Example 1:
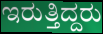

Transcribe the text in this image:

ಇರುತ್ತಿದ್ದರು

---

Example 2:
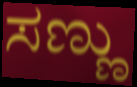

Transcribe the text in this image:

ಸಣ್ಣು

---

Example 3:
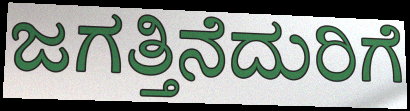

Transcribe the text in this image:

ಜಗತ್ತಿನೆದುರಿಗೆ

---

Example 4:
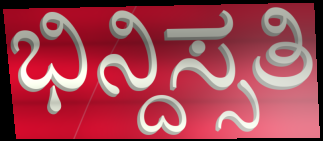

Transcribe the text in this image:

ಭಿನ್ದಿಸ್ಸತಿ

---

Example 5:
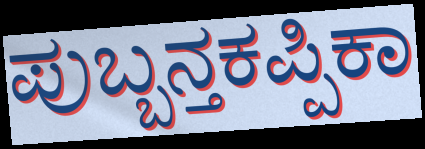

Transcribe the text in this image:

ಪುಬ್ಬನ್ತಕಪ್ಪಿಕಾ